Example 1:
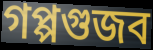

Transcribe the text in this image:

গপ্পগুজব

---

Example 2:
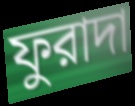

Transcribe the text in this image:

ফুরাদা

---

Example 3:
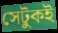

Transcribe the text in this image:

সেটুকই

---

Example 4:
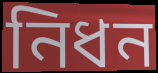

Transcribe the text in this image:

নিধন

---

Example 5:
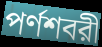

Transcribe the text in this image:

পর্ণশবরী